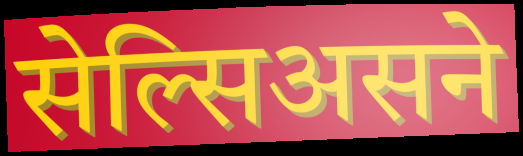
सेल्सिअसने